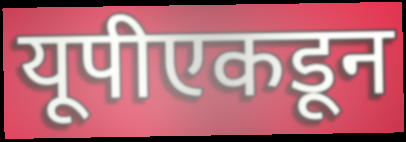
यूपीएकडून